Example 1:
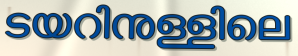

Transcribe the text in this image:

ടയറിനുള്ളിലെ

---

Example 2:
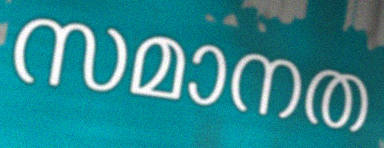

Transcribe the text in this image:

സമാനത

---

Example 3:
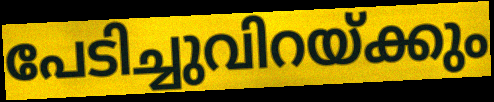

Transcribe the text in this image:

പേടിച്ചുവിറയ്ക്കും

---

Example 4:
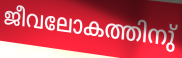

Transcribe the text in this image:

ജീവലോകത്തിനു്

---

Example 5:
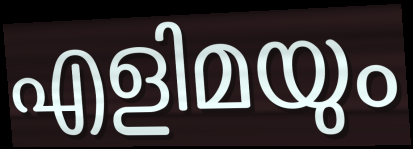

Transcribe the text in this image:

എളിമയും